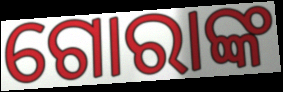
ଗୋରାଙ୍କ